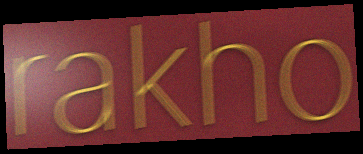
rakho